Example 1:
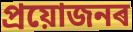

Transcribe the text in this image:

প্ৰয়োজনৰ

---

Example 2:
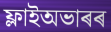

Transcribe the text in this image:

ফ্লাইঅভাৰৰ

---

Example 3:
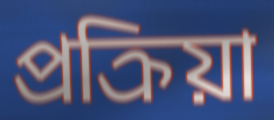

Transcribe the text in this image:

প্ৰক্ৰিয়া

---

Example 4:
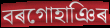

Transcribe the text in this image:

বৰগোহাঞিৰ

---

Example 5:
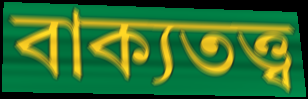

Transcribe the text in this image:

বাক্যতত্ত্ব